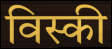
विस्की